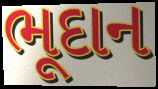
ભૂદાન